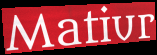
Matiur